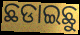
ଛଡାଇଛୁ